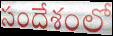
సందేశంలో